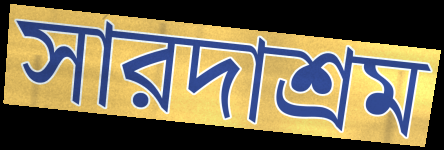
সারদাশ্রম